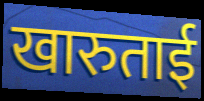
खारुताई